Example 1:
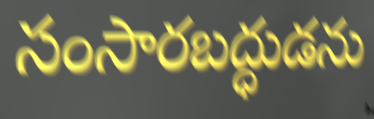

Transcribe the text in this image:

సంసారబద్ధుడను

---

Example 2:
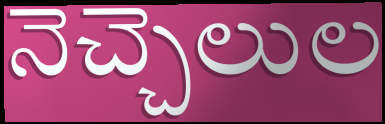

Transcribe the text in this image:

నెచ్చెలుల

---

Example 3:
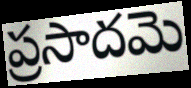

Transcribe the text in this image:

ప్రసాదమె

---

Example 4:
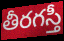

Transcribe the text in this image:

తీరగస్తీ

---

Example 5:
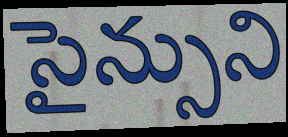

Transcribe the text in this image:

సైన్సుని